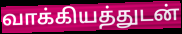
வாக்கியத்துடன்